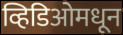
व्हिडिओमधून